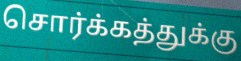
சொர்க்கத்துக்கு